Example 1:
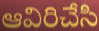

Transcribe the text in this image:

ఆవిరిచేసి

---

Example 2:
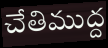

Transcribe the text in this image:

చేతిముద్ద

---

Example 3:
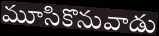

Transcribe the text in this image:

మూసికొనువాడు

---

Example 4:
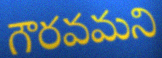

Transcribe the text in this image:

గౌరవమని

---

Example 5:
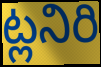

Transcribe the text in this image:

ట్లనిరి